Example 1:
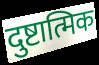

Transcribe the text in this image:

दुष्टात्मिक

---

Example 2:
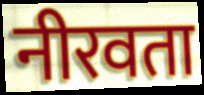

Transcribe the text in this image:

नीरवता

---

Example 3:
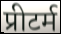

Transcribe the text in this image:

प्रीटर्म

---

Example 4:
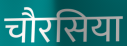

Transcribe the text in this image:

चौरसिया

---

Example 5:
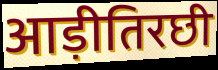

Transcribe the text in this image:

आड़ीतिरछी